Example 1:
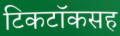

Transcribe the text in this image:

टिकटॉकसह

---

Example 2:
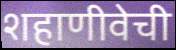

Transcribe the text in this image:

शहाणीवेची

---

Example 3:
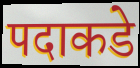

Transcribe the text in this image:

पदाकडे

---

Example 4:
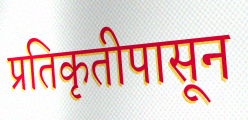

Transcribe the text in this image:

प्रतिकृतीपासून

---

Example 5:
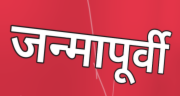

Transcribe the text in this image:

जन्मापूर्वी